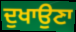
ਦੁਖਾਉਣਾ